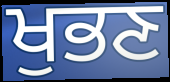
ਖੁਭਣ